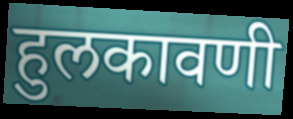
हुलकावणी